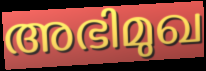
അഭിമുഖ